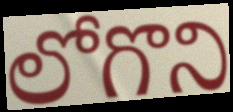
లోగొని